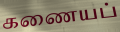
கணையப்